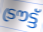
ട്രൗട്ട്